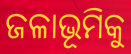
ଜଳାଭୂମିକୁ